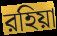
রহিয়া